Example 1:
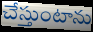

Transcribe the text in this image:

చేస్తుంటాను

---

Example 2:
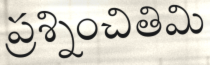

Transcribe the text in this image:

ప్రశ్నించితిమి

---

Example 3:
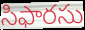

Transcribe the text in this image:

సిఫారసు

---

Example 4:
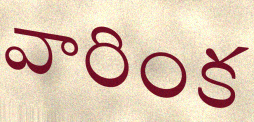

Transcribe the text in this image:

వారింక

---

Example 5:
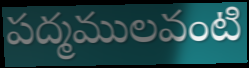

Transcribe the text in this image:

పద్మములవంటి